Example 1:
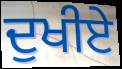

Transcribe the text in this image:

ਦੁਖੀਏ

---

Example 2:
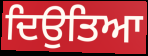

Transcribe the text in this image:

ਦਿਉਤਿਆ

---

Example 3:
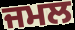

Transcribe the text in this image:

ਜਮਲ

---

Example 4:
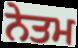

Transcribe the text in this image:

ਨੇਤਮ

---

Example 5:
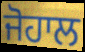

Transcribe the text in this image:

ਜੋਹਾਲ